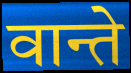
वान्ते